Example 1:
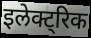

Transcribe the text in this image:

इलेक्ट्रिक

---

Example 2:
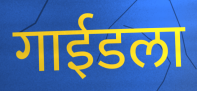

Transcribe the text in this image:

गाईडला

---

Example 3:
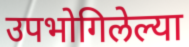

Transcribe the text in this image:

उपभोगिलेल्या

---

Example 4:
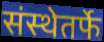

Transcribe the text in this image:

संस्थेतर्फे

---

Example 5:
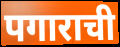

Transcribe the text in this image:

पगाराची